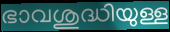
ഭാവശുദ്ധിയുള്ള